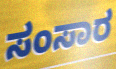
ಸಂಸಾರ